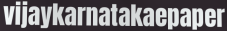
vijaykarnatakaepaper